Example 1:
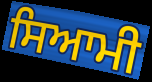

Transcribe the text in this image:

ਸਿਆਮੀ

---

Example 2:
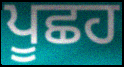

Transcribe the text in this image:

ਪੂਛਹ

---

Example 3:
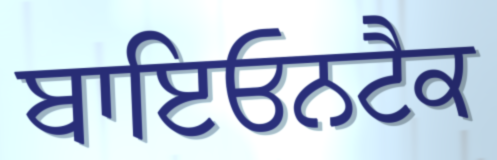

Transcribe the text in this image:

ਬਾਇਓਨਟੈਕ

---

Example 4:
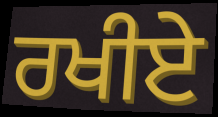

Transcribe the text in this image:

ਰਖੀਏ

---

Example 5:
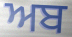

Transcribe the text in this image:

ਅਬ